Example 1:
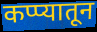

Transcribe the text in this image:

कप्प्यातून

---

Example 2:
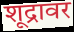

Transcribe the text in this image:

शूद्रावर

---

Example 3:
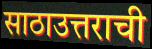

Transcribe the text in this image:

साठाउत्तराची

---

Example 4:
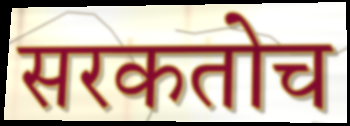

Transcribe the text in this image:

सरकतोच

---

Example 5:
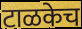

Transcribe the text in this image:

टाळकेच